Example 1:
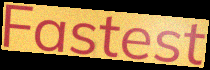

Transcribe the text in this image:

Fastest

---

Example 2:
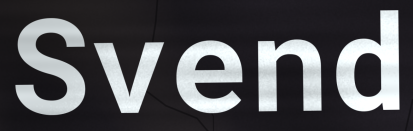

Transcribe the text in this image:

Svend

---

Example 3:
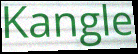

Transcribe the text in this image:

Kangle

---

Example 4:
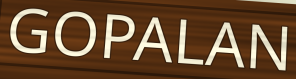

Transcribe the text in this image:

GOPALAN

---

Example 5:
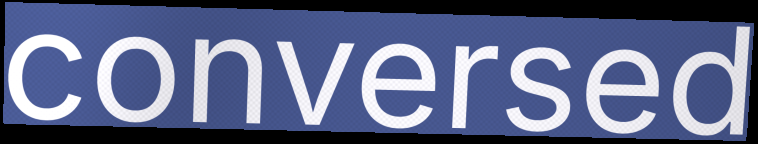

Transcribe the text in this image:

conversed